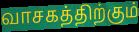
வாசகத்திற்கும்